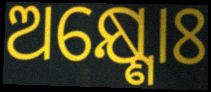
ଅକ୍ଷ୍ଣୋଃ